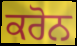
ਕਰੋਨ